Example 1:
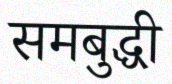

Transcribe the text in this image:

समबुद्धी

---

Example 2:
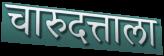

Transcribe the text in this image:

चारुदत्ताला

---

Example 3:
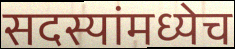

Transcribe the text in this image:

सदस्यांमध्येच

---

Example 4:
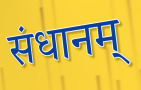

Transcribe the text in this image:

संधानम्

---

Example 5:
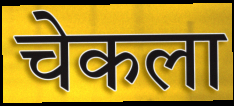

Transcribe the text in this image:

चेकला